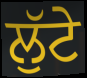
ਲੁੱਟੇ